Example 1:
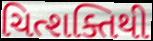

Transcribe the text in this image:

ચિત્શક્તિથી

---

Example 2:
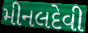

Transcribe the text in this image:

મીનલદેવી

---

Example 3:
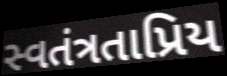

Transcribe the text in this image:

સ્વતંત્રતાપ્રિય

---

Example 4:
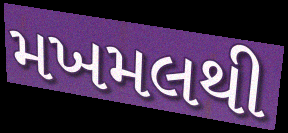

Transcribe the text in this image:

મખમલથી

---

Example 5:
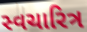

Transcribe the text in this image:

સ્વચારિત્ર